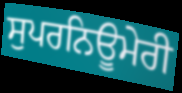
ਸੁਪਰਨਿਊਮੇਰੀ